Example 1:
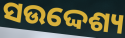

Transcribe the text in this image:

ସଉଦ୍ଦେଶ୍ୟ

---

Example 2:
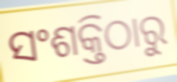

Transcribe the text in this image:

ସଂଶକ୍ତିଠାରୁ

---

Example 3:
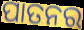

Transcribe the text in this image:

ପାତନର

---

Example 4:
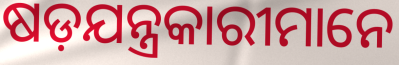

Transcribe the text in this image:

ଷଡ଼ଯନ୍ତ୍ରକାରୀମାନେ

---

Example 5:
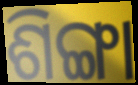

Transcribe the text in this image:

ଶିଙ୍ଗା